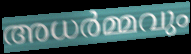
അധർമ്മവും